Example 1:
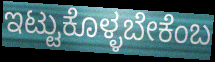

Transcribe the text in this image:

ಇಟ್ಟುಕೊಳ್ಳಬೇಕೆಂಬ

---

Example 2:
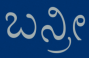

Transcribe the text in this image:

ಬನ್ರೀ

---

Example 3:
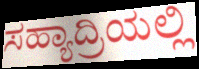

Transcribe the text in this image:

ಸಹ್ಯಾದ್ರಿಯಲ್ಲಿ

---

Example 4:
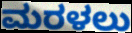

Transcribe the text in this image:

ಮರಳಲು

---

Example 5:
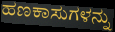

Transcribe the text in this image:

ಹಣಕಾಸುಗಳನ್ನು